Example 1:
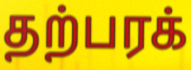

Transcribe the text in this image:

தற்பரக்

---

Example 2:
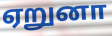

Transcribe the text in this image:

ஏறுனா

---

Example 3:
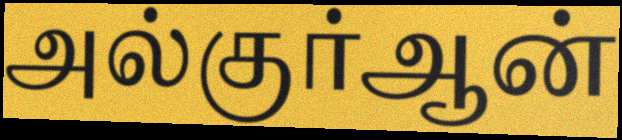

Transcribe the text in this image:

அல்குர்ஆன்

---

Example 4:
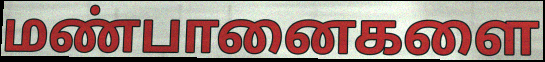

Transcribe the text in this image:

மண்பானைகளை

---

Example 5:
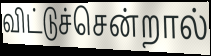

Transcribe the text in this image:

விட்டுச்சென்றால்